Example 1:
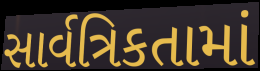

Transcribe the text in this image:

સાર્વત્રિકતામાં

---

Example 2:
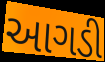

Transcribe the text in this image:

આગડી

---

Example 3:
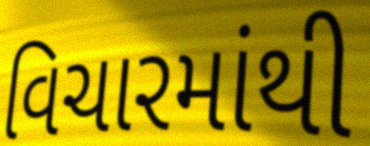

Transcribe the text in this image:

વિચારમાંથી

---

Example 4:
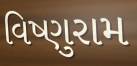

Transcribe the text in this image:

વિષ્ણુરામ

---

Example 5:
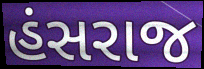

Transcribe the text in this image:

હંસરાજ